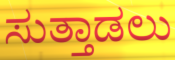
ಸುತ್ತಾಡಲು